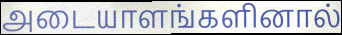
அடையாளங்களினால்